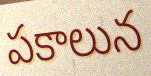
పకాలున